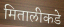
मितालीकडे